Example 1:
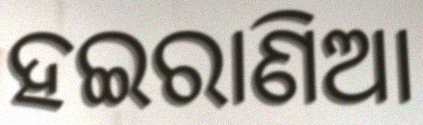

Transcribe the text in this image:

ହଇରାଣିଆ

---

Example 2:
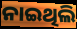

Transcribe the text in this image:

ନାଇଥିଲି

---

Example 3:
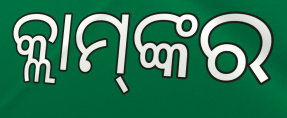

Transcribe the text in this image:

କ୍ଲାମ୍‌ଙ୍କର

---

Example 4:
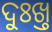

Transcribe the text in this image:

ଦୁଃଖ୍ତ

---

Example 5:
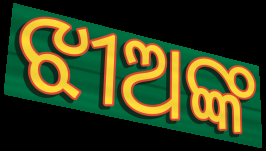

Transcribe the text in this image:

ଝୀଅଙ୍କ